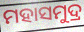
ମହାସମୁଦ୍ର